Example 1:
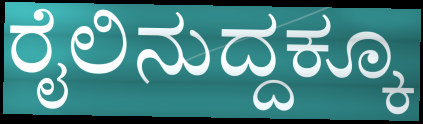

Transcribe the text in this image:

ರೈಲಿನುದ್ದಕ್ಕೂ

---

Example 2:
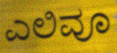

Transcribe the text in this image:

ಎಲಿವೂ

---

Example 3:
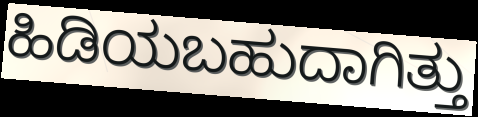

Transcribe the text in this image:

ಹಿಡಿಯಬಹುದಾಗಿತ್ತು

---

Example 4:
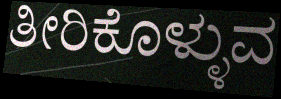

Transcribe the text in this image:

ತೀರಿಕೊಳ್ಳುವ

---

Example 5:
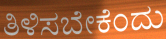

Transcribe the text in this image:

ತಿಳಿಸಬೇಕೆಂದು